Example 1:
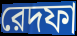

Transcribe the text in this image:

রেদফা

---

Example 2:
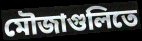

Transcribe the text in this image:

মৌজাগুলিতে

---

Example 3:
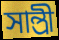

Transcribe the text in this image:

সান্ত্রী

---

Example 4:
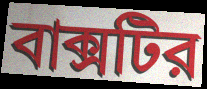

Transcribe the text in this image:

বাক্সটির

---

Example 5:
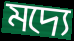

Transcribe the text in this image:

মদ্যে